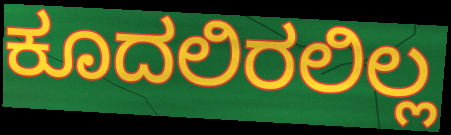
ಕೂದಲಿರಲಿಲ್ಲ